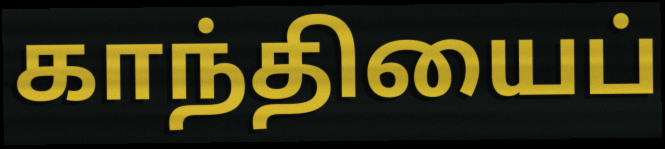
காந்தியைப்